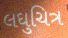
લઘુચિત્ર